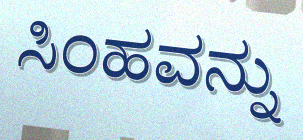
ಸಿಂಹವನ್ನು